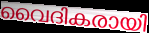
വൈദികരായി